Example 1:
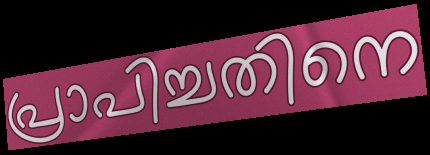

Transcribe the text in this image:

പ്രാപിച്ചതിനെ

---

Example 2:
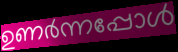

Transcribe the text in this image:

ഉണർന്നപ്പോൾ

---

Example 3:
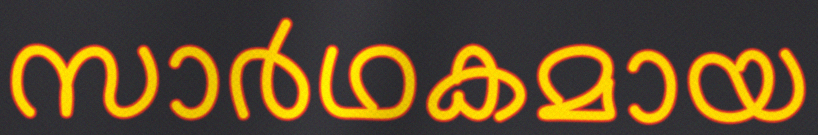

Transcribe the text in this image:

സാർഥകമായ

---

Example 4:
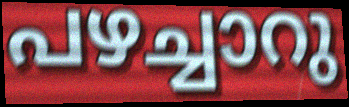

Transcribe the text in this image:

പഴച്ചാറു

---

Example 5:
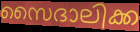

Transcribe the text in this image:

സൈദാലിക്ക